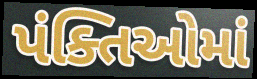
પંક્તિઓમાં